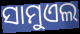
ସାମୁଏଲ